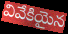
వివేకియైన